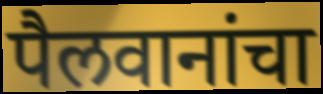
पैलवानांचा